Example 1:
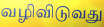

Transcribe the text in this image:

வழிவிடுவது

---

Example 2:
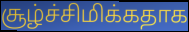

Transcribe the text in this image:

சூழ்ச்சிமிக்கதாக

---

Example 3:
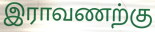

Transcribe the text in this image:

இராவணற்கு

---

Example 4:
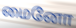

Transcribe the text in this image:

மைனோ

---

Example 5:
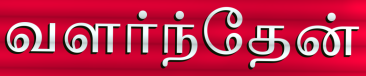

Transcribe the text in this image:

வளர்ந்தேன்